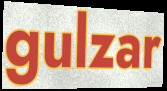
gulzar